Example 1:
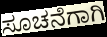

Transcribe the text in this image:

ಸೂಚನೆಗಾಗಿ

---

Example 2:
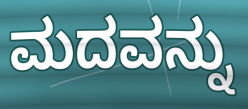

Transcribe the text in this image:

ಮದವನ್ನು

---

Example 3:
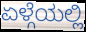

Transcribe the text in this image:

ಏಳ್ಗೆಯಲ್ಲಿ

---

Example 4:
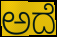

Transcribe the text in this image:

ಅದೆ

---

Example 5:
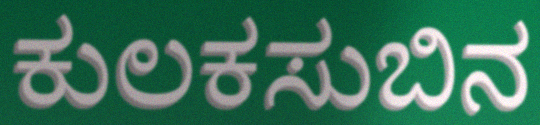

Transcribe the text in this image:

ಕುಲಕಸುಬಿನ